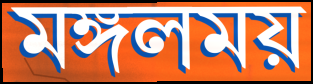
মঙ্গলময়